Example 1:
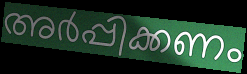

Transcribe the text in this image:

അർപ്പിക്കണം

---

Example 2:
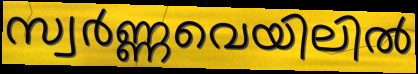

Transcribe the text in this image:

സ്വർണ്ണവെയിലിൽ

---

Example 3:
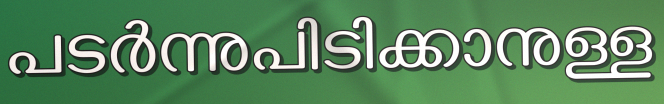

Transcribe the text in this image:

പടർന്നുപിടിക്കാനുള്ള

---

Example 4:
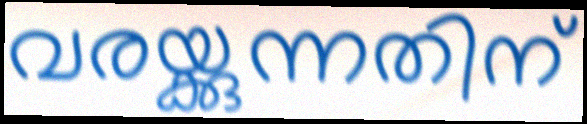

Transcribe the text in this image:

വരയ്ക്കുന്നതിന്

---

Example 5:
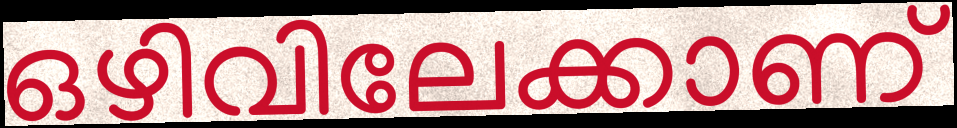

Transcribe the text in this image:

ഒഴിവിലേക്കാണ്